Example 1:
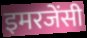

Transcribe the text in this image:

इमरजेंसी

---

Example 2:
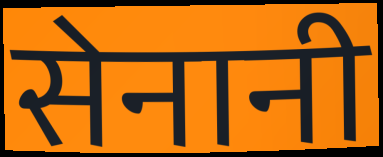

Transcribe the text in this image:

सेनानी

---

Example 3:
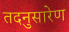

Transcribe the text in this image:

तदनुसारेण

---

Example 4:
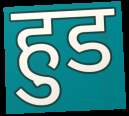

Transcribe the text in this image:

हुड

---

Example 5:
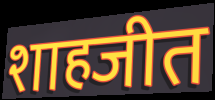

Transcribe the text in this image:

शाहजीत